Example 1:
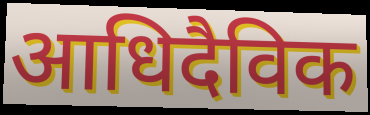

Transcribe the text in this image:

आधिदैविक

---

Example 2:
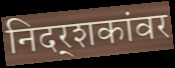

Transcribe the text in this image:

निदर्शकांवर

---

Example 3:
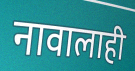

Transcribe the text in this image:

नावालाही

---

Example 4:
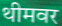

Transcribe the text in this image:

थीमवर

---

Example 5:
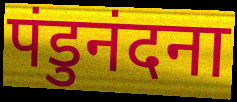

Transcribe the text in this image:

पंडुनंदना